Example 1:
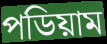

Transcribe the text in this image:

পডিয়াম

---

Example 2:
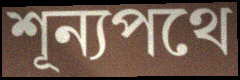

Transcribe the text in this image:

শূন্যপথে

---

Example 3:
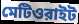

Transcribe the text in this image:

মেটিওরাইট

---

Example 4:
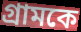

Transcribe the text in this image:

গ্রামকে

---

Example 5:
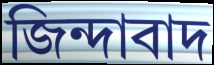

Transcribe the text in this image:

জিন্দাবাদ